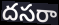
దసరా